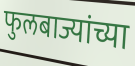
फुलबाज्यांच्या